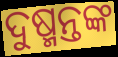
ଦୁଷ୍ମନ୍ତଙ୍କ